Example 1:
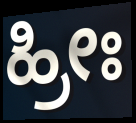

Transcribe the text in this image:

ಹ್ರೀಃ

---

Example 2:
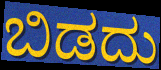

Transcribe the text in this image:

ಬಿಡದು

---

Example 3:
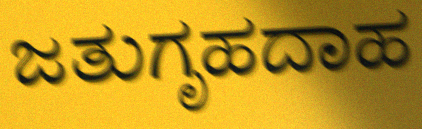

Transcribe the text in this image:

ಜತುಗೃಹದಾಹ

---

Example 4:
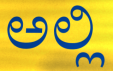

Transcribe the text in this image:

ಅಲ್ಲಿ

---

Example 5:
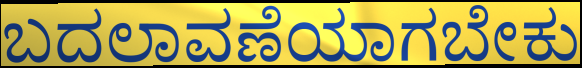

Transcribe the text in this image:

ಬದಲಾವಣೆಯಾಗಬೇಕು